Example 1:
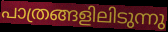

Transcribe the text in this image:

പാത്രങ്ങളിലിടുന്നു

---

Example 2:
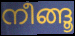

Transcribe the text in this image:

നീങ്ങൂ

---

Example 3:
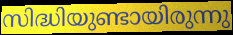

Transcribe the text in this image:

സിദ്ധിയുണ്ടായിരുന്നു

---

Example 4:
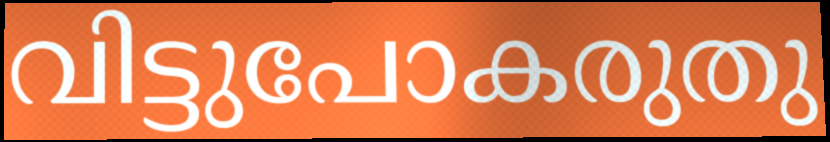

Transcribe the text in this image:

വിട്ടുപോകരുതു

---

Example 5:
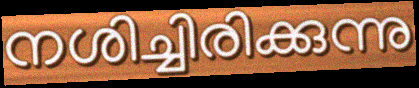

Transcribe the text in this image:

നശിച്ചിരിക്കുന്നു